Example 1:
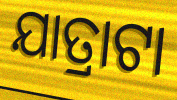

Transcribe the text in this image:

ଯାତ୍ରାଟା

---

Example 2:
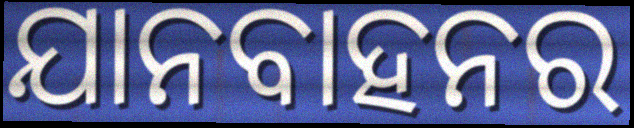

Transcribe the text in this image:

ଯାନବାହନର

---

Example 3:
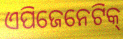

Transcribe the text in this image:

ଏପିଜେନେଟିକ୍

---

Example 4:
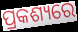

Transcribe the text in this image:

ପ୍ରକଶ୍ୟରେ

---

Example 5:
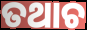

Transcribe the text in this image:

ତଥାଚ